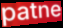
patne